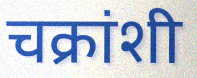
चक्रांशी